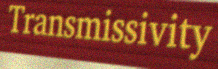
Transmissivity